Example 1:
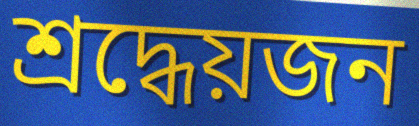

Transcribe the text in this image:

শ্রদ্ধেয়জন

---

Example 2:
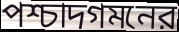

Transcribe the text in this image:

পশ্চাদগমনের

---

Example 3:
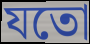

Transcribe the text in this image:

যতো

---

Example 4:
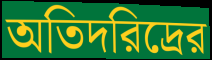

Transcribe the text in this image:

অতিদরিদ্রের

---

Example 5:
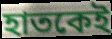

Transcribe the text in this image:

হাতকেই